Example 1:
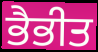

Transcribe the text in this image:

ਭੈਭੀਤ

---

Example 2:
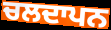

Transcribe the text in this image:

ਚਲਦਾਪਨ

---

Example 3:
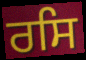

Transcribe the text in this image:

ਰਸਿ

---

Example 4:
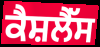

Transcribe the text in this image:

ਕੈਸ਼ਲੈੱਸ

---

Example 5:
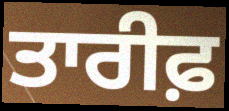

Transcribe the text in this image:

ਤਾਰੀਫ਼